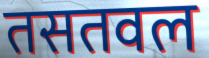
तसतवल